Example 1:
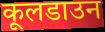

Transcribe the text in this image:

कूलडाउन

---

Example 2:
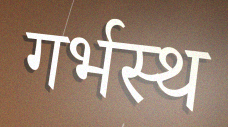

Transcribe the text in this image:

गर्भस्थ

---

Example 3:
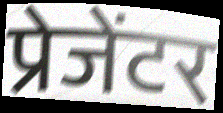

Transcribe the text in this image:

प्रेजेंटर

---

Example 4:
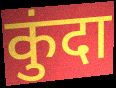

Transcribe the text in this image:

कुंदा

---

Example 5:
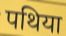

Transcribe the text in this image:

पथिया